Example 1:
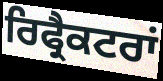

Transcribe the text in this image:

ਰਿਫ੍ਰੈਕਟਰਾਂ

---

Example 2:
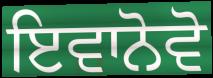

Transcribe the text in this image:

ਇਵਾਨੋਵੋ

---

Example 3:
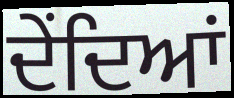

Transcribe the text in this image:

ਦੇਂਦਿਆਂ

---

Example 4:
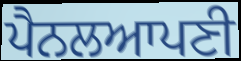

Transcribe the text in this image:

ਪੈਨਲਆਪਣੀ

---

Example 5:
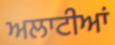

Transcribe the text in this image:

ਅਲਾਟੀਆਂ